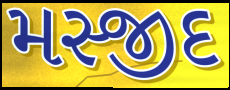
મસ્જીદ